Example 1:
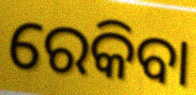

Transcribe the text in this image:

ରେକିବା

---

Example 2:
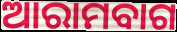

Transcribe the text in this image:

ଆରାମବାଗ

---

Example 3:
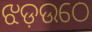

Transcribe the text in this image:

ଝଡ଼ଉଠେ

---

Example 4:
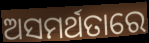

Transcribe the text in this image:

ଅସମର୍ଥତାରେ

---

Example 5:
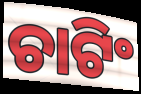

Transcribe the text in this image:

ଚାଟିଂ